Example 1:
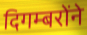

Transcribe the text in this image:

दिगम्बरोंने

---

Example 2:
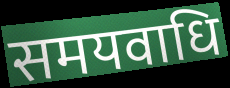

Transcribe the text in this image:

समयवाधि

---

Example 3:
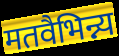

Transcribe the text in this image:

मतवैभिन्न्य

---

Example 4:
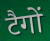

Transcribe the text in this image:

टैगों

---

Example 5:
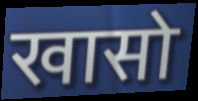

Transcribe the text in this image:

खासो